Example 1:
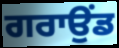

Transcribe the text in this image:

ਗਰਾਉਂਡ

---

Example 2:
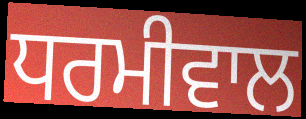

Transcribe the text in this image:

ਧਰਮੀਵਾਲ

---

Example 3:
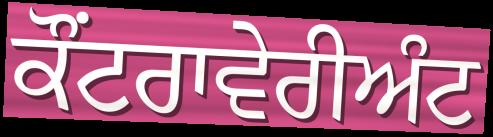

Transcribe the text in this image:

ਕੌਂਟਰਾਵੇਰੀਅੰਟ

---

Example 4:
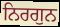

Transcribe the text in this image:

ਨਿਰਗੁਨ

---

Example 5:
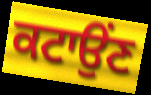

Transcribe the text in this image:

ਕਟਾਉਂਣ